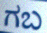
ಗಬ